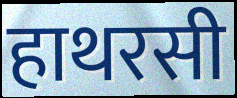
हाथरसी